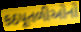
કઠપૂતળીઓનો